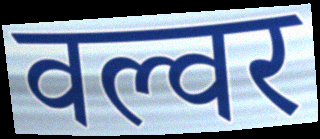
वल्वर